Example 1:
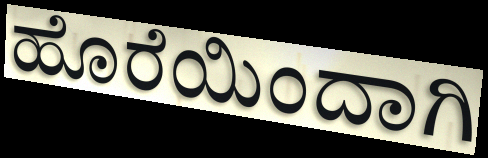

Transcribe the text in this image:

ಹೊರೆಯಿಂದಾಗಿ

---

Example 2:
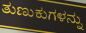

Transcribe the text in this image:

ತುಣುಕುಗಳನ್ನು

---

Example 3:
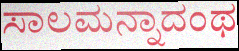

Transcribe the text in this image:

ಸಾಲಮನ್ನಾದಂಥ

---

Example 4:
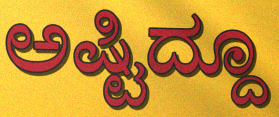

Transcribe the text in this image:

ಅಷ್ಟಿದ್ದೂ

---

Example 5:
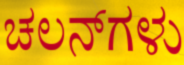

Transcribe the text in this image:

ಚಲನ್‌ಗಳು